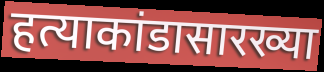
हत्याकांडासारख्या